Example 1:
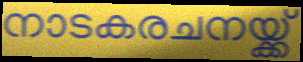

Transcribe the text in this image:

നാടകരചനയ്ക്ക്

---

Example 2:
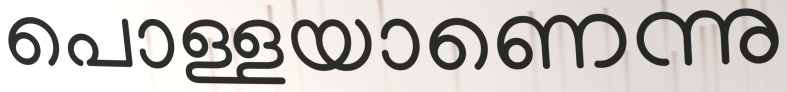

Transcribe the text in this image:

പൊള്ളയാണെന്നു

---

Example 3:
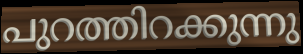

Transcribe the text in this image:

പുറത്തിറക്കുന്നു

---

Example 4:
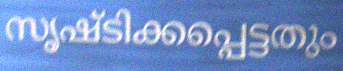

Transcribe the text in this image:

സൃഷ്ടിക്കപ്പെട്ടതും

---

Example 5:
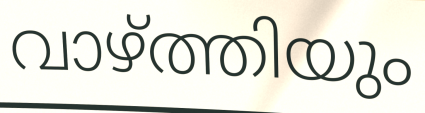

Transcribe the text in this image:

വാഴ്ത്തിയും